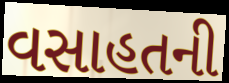
વસાહતની